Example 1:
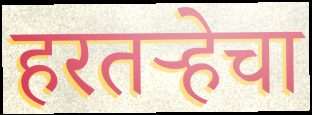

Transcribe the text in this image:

हरतऱ्हेचा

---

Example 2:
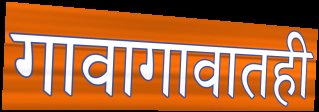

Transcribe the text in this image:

गावागावातही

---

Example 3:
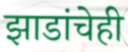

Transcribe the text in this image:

झाडांचेही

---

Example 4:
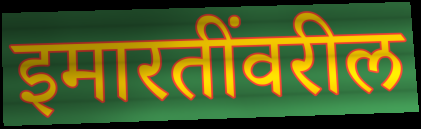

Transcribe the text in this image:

इमारतींवरील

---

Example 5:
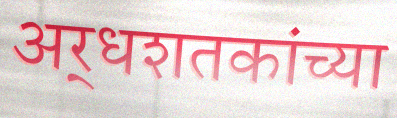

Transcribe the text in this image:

अर्धशतकांच्या